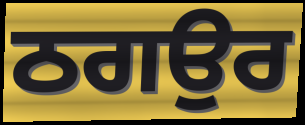
ਠਗਉਰ